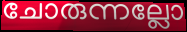
ചോരുന്നല്ലോ